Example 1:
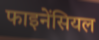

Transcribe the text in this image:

फाइनेंसियल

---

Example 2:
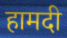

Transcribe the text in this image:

हामदी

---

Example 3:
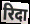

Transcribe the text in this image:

रिदा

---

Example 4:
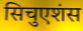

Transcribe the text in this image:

सिचुएशंस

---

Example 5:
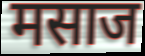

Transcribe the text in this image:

मसाज